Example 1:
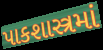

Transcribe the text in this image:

પાકશાસ્ત્રમાં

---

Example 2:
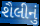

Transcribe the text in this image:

શૈલીનું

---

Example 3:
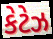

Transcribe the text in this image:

કેટેઝ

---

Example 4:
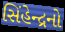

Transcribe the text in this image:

સિંહેન્દ્રનો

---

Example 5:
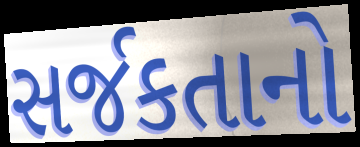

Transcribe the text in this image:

સર્જકતાનો